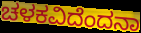
ಚಳಕವಿದೆಂದನಾ